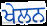
ਖੇਲਨ